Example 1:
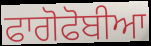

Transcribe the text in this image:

ਫਾਗੋਫੋਬੀਆ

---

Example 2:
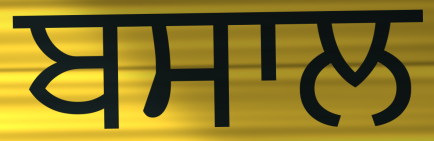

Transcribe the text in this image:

ਬਸਾਲ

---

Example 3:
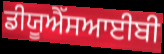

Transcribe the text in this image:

ਡੀਯੂਐੱਸਆਈਬੀ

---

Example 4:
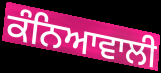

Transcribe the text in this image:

ਕੰਨਿਆਵਾਲੀ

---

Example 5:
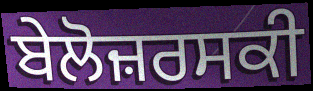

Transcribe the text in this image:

ਬੇਲੋਜ਼ਰਸਕੀ